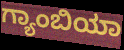
ಗ್ಯಾಂಬಿಯಾ